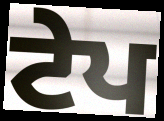
ਟੇਪ